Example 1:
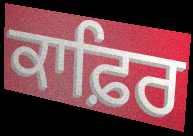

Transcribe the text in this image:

ਕਾਫ਼ਿਰ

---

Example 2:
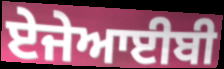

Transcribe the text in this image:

ਏਜੇਆਈਬੀ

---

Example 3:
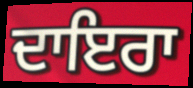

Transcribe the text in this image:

ਦਾਇਰਾ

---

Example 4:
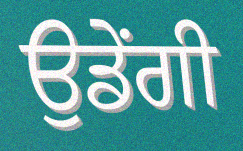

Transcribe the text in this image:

ਉਡੇਂਗੀ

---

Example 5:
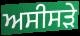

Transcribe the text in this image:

ਅਸੀਸੜੇ